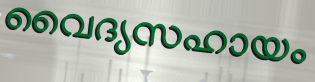
വൈദ്യസഹായം